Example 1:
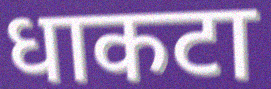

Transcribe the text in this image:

धाकटा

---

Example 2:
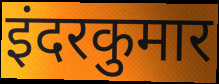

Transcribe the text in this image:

इंदरकुमार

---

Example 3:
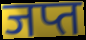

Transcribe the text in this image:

जप्त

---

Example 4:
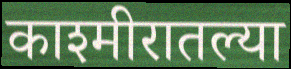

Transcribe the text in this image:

काश्मीरातल्या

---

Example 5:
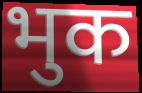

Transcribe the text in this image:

भुक